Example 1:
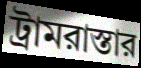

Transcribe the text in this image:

ট্রামরাস্তার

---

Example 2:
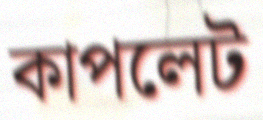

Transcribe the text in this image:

কাপলেট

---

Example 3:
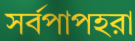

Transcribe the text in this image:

সর্বপাপহরা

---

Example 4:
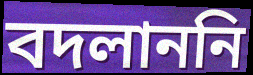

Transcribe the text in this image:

বদলাননি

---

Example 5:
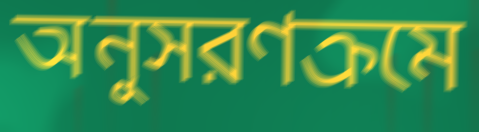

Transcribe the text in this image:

অনুসরণক্রমে